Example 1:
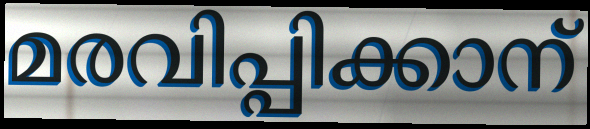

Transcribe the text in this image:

മരവിപ്പിക്കാന്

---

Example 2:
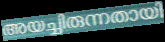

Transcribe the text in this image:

അയച്ചിരുന്നതായി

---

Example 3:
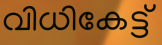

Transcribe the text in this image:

വിധികേട്ട്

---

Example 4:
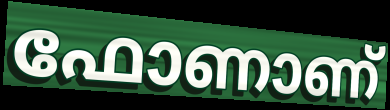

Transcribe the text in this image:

ഫോണാണ്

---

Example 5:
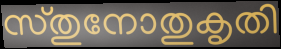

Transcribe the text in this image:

സ്തുനോതുകൃതി